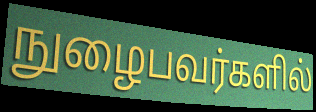
நுழைபவர்களில்